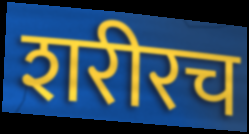
शरीरच